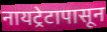
नायट्रेटापासून